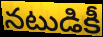
నటుడికీ